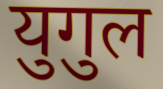
युगुल